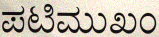
ಪಟಿಮುಖಂ